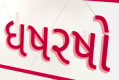
ધષરષો